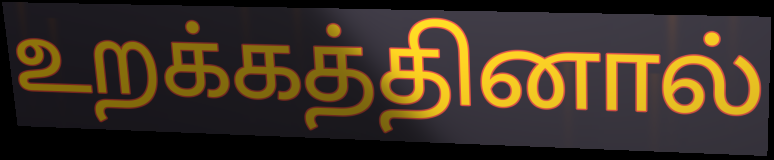
உறக்கத்தினால்